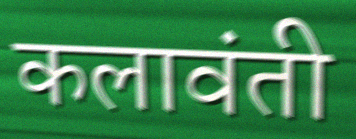
कलावंती